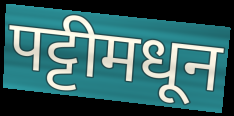
पट्टीमधून